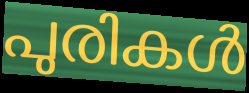
പുരികൾ